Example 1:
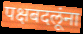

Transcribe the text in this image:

पक्षबदलूंना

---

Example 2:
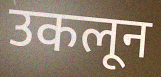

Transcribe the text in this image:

उकलून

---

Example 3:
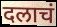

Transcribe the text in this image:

दलाचं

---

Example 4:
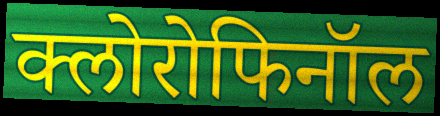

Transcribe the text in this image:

क्लोरोफिनॉल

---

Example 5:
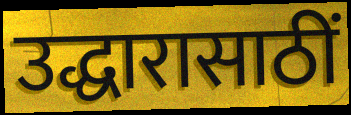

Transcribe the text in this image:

उद्धारासाठीं